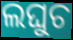
ଲଘୁଚ